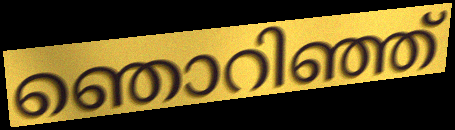
ഞൊറിഞ്ഞ്